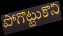
పోగొట్టుకొని